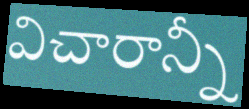
విచారాన్నీ